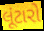
લૂંટારો